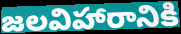
జలవిహారానికి